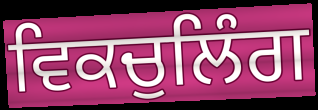
ਵਿਕਚੁਲਿੰਗ